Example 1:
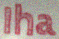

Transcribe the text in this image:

Iha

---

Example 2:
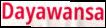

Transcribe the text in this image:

Dayawansa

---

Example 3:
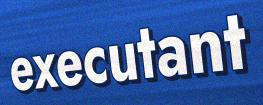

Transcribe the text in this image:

executant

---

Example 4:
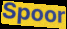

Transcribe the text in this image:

Spoor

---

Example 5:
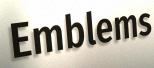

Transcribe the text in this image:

Emblems